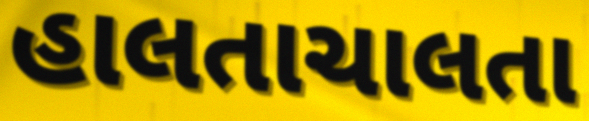
હાલતાચાલતા